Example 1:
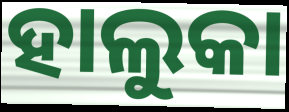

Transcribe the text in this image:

ହାଲୁକା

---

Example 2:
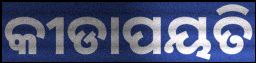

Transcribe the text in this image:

କୀଡାପୟତି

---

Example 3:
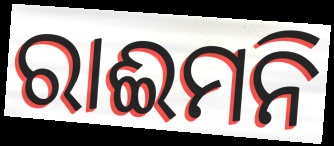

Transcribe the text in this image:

ରାଈମନି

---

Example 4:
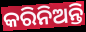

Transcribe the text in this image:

କରିନିଅନ୍ତି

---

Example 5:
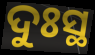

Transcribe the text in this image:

ଦୁଃସ୍ଥ